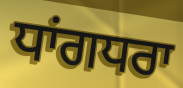
ਧਾਂਗਧਰਾ